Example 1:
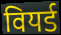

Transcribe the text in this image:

वियर्ड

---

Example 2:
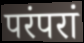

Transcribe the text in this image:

परंपरां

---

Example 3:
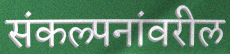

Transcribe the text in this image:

संकल्पनांवरील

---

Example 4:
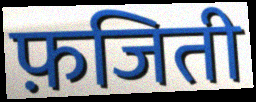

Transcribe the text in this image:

फ़जिती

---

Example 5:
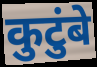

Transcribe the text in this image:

कुटुंबे